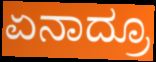
ಏನಾದ್ರೂ